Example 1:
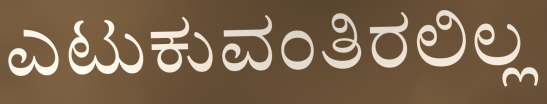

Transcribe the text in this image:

ಎಟುಕುವಂತಿರಲಿಲ್ಲ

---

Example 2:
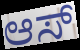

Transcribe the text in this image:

ಆಸ್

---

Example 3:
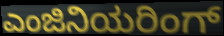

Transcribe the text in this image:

ಎಂಜಿನಿಯರಿಂಗ್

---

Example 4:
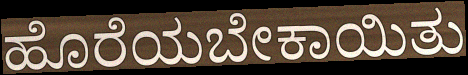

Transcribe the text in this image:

ಹೊರೆಯಬೇಕಾಯಿತು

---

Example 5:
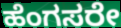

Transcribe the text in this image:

ಹೆಂಗಸರೇ